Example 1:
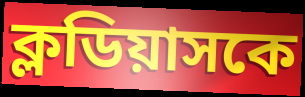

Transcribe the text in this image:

ক্লডিয়াসকে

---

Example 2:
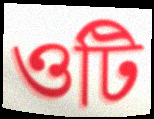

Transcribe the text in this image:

ওটি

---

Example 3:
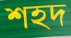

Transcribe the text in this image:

শহদ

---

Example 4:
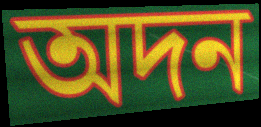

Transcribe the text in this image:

অদন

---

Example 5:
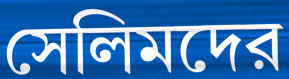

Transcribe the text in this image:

সেলিমদের